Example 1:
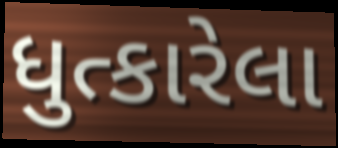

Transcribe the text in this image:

ધુત્કારેલા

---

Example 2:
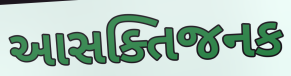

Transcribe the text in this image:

આસક્તિજનક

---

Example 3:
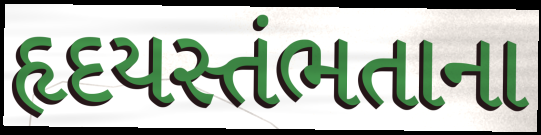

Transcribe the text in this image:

હૃદયસ્તંભતાના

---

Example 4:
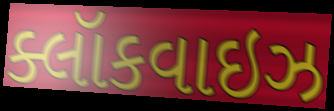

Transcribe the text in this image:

ક્લૉકવાઇઝ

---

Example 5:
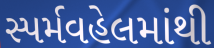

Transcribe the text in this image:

સ્પર્મવહેલમાંથી